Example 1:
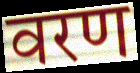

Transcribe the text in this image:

वरण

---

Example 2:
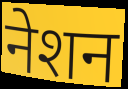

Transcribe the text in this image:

नेशन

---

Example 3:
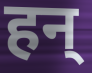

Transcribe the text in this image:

हन्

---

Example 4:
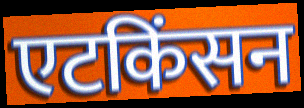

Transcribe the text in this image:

एटकिंसन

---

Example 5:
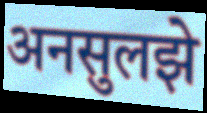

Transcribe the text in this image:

अनसुलझे